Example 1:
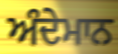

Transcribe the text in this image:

ਅੰਦੇਮਾਨ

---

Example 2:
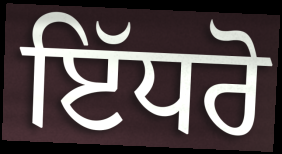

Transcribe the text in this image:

ਇੱਧਰੋ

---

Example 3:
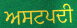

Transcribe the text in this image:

ਅਸਟਪਦੀ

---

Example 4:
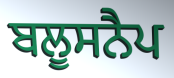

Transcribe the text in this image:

ਬਲੂਸਨੈਪ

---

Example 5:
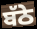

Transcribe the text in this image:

ਬੱਠੇ